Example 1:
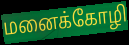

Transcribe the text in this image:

மனைக்கோழி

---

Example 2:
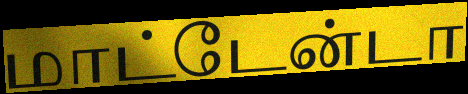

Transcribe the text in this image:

மாட்டேன்டா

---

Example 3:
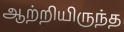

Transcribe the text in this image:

ஆற்றியிருந்த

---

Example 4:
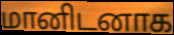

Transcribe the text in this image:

மானிடனாக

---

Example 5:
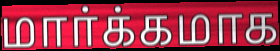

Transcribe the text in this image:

மார்க்கமாக